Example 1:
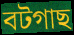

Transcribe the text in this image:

বটগাছ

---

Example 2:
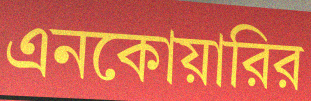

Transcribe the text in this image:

এনকোয়ারির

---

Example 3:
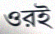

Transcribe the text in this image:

ওরই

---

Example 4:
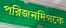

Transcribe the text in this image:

পরিজনদিগকে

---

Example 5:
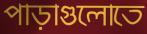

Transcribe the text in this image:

পাড়াগুলোতে